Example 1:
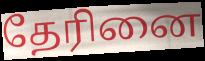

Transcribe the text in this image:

தேரினை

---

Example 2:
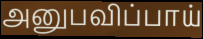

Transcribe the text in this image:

அனுபவிப்பாய்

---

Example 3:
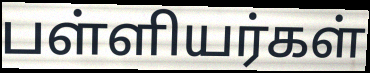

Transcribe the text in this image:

பள்ளியர்கள்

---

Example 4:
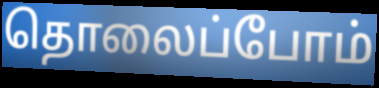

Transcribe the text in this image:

தொலைப்போம்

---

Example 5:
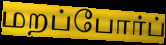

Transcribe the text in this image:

மறப்போர்ப்